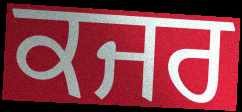
ਕਜਰ